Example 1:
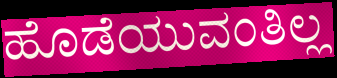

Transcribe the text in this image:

ಹೊಡೆಯುವಂತಿಲ್ಲ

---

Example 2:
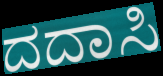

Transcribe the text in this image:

ದದಾಸಿ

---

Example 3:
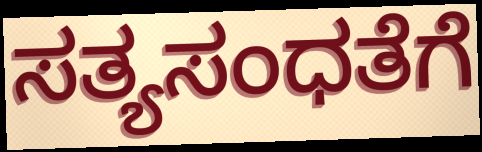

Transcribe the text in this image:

ಸತ್ಯಸಂಧತೆಗೆ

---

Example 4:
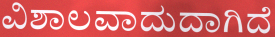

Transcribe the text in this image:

ವಿಶಾಲವಾದುದಾಗಿದೆ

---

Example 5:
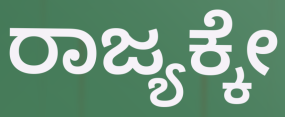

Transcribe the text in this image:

ರಾಜ್ಯಕ್ಕೇ